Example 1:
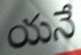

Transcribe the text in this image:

యనే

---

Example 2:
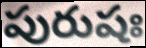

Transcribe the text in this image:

పురుషః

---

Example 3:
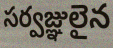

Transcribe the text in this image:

సర్వజ్ఞులైన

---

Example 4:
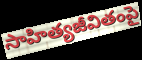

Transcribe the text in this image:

సాహిత్యజీవితంపై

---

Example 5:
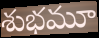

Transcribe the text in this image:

శుభమూ